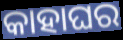
କାହାଘର